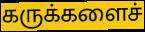
கருக்களைச்